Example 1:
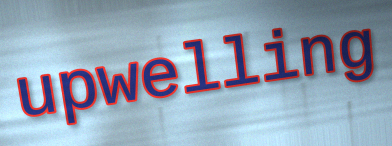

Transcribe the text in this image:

upwelling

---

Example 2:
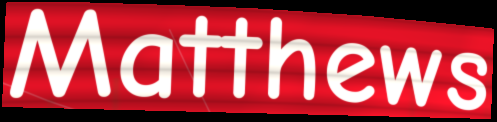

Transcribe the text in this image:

Matthews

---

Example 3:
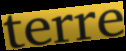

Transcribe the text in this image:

terre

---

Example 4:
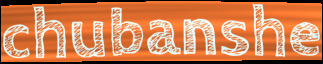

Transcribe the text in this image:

chubanshe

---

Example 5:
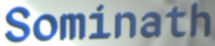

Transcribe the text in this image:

Sominath